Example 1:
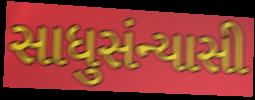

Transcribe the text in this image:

સાધુસંન્યાસી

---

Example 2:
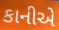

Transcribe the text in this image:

કાનીએ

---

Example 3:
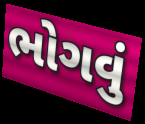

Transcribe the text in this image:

ભોગવું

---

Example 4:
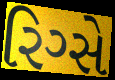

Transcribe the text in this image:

રિગ્સે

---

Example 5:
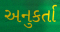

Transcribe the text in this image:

અનુકર્તા